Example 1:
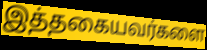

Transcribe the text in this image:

இத்தகையவர்களை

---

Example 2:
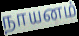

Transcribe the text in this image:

நாயனம்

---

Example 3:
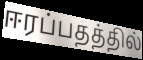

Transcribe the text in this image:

ஈரப்பதத்தில்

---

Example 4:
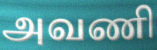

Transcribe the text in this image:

அவணி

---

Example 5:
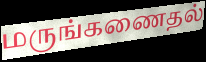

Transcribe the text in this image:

மருங்கணைதல்